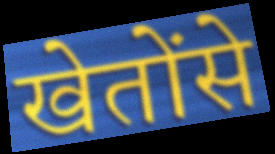
खेतोंसे